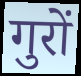
गुरों